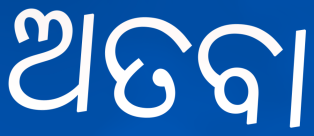
ଅତବା